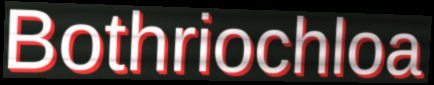
Bothriochloa